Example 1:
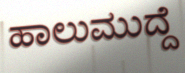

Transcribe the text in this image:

ಹಾಲುಮುದ್ದೆ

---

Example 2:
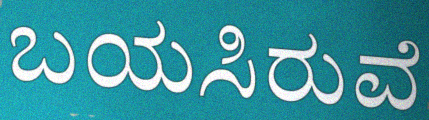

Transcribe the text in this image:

ಬಯಸಿರುವೆ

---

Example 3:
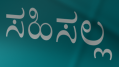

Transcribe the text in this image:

ಸಹಿಸಲ್ಲ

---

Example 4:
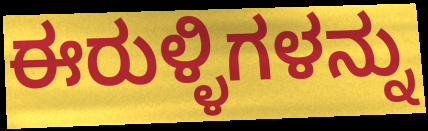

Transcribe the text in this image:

ಈರುಳ್ಳಿಗಳನ್ನು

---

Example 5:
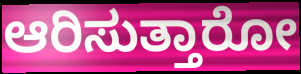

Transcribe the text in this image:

ಆರಿಸುತ್ತಾರೋ